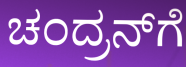
ಚಂದ್ರನ್‌ಗೆ